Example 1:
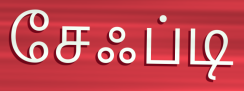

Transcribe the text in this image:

சேஃப்டி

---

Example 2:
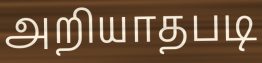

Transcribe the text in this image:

அறியாதபடி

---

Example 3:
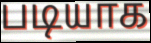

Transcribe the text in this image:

படியாக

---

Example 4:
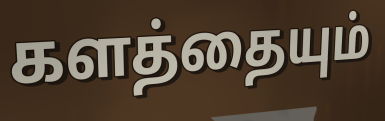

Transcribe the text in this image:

களத்தையும்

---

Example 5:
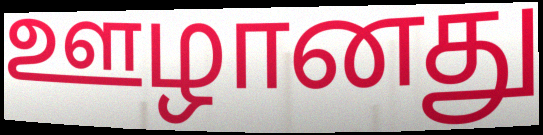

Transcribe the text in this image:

ஊழானது